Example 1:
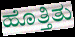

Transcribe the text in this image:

ಹೊತ್ತಿತು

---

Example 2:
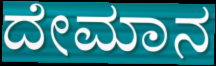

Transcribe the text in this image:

ದೇಮಾನ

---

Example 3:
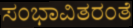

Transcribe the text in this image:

ಸಂಭಾವಿತರಂತೆ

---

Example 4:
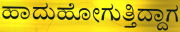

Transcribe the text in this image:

ಹಾದುಹೋಗುತ್ತಿದ್ದಾಗ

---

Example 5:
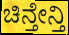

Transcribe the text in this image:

ಚಿನ್ತೇನ್ತಿ